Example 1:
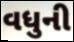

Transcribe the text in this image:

વધુની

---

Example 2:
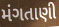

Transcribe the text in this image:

મંગતાણી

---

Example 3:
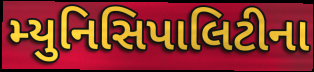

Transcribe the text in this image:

મ્યુનિસિપાલિટીના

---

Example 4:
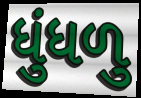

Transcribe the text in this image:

ધુંધળુ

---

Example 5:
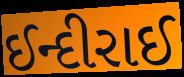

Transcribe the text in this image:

ઈન્દીરાઈ